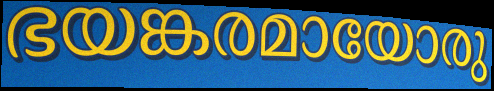
ഭയങ്കരമായോരു